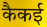
कैकई